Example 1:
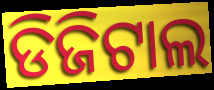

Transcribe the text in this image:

ଡିଜିଟାଲ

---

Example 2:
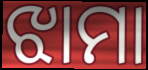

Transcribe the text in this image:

ଝାମା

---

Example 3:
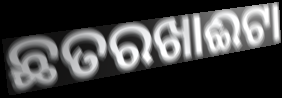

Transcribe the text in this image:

ଛତରଖାଈଟା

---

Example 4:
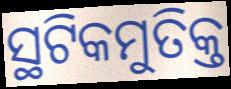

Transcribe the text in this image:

ସ୍ଥଟିକମୁତିକ୍ତ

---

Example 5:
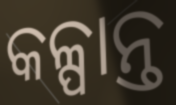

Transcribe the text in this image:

କଳ୍ପାନ୍ତ